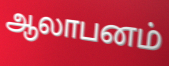
ஆலாபனம்